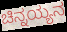
ಚಿನ್ನಯ್ಯನ